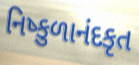
નિષ્કુળાનંદકૃત